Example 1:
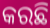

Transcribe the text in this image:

କରଛି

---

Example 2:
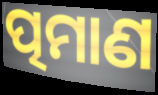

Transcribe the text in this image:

ତ୍ପମାଣ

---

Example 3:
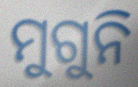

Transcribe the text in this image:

ମୁଗୁନି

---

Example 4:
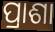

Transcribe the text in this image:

ପ୍ରାଶା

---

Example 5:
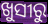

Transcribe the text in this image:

ଖୁସୀରୁ